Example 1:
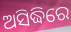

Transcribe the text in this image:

ଅସିଦ୍ଧିରେ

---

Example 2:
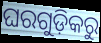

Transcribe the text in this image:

ଘରଗୁଡ଼ିକରୁ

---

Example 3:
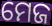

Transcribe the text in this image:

ମେଜ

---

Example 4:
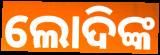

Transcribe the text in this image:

ଲୋଦିଙ୍କ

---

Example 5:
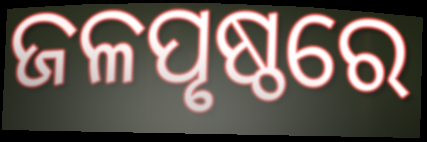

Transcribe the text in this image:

ଜଳପୃଷ୍ଠରେ